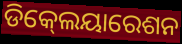
ଡିକ୍‍ଲେୟାରେଶନ